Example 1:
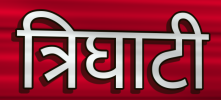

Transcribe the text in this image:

त्रिघाटी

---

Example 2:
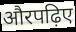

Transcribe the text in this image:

औरपढ़िए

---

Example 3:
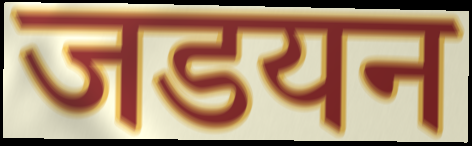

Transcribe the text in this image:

जडयन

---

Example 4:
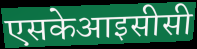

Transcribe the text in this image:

एसकेआइसीसी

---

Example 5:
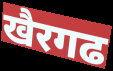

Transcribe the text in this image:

खैरगढ